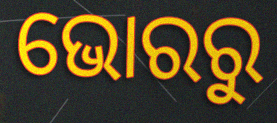
ଭୋରରୁ